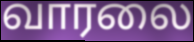
வாரலை